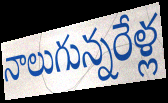
నాలుగున్నరేళ్ల